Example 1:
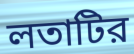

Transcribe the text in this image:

লতাটির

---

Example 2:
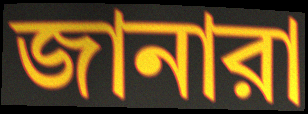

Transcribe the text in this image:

জানারা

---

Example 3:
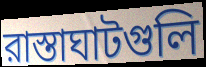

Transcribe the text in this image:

রাস্তাঘাটগুলি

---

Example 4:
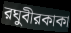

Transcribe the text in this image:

রঘুবীরকাকা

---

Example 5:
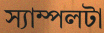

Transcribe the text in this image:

স্যাম্পলটা